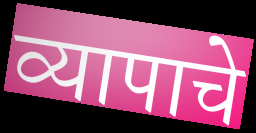
व्यापाचे